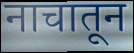
नाचातून